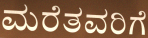
ಮರೆತವರಿಗೆ